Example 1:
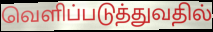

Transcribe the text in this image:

வெளிப்படுத்துவதில்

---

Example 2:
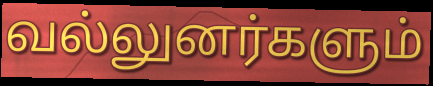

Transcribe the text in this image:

வல்லுனர்களும்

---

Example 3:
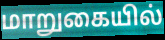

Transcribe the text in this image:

மாறுகையில்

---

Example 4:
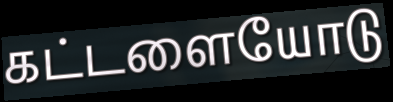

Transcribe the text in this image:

கட்டளையோடு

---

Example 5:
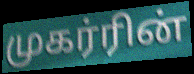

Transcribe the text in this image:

முகர்ரின்